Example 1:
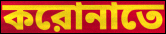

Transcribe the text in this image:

করোনাতে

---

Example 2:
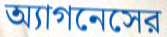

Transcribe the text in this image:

অ্যাগনেসের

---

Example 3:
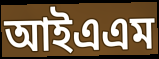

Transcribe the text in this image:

আইএএম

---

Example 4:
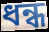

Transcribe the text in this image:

ধন্ধ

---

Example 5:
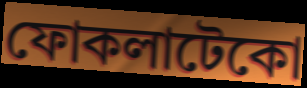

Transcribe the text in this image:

ফোকলাটেকো